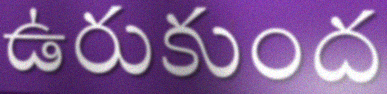
ఉరుకుంద